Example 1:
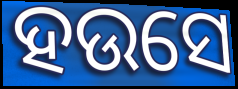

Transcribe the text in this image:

ହଉସେ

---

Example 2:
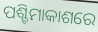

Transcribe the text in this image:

ପଶ୍ଚିମାକାଶରେ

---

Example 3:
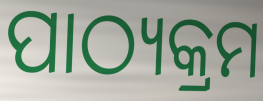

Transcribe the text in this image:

ପାଠ୍ୟକ୍ରମ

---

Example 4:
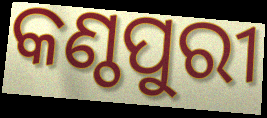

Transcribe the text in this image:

କଣ୍ଠପୁରୀ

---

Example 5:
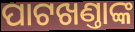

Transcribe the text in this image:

ପାଟଖଣ୍ତାଙ୍କ